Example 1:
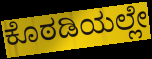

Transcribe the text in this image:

ಕೊಠಡಿಯಲ್ಲೇ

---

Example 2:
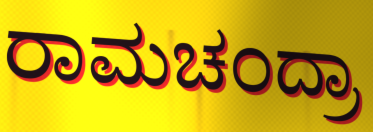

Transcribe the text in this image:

ರಾಮಚಂದ್ರಾ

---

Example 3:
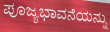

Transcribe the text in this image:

ಪೂಜ್ಯಭಾವನೆಯನ್ನು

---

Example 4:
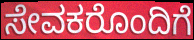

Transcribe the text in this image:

ಸೇವಕರೊಂದಿಗೆ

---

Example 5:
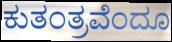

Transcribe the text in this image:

ಕುತಂತ್ರವೆಂದೂ